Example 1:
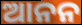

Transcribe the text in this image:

ଆନନ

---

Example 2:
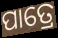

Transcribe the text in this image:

ପାତ୍ରେ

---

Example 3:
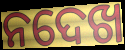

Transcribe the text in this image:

ନଦେଖ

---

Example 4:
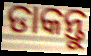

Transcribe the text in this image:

ଡାକନ୍ତୁ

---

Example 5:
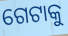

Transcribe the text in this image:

ଗେଟାକୁ